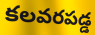
కలవరపడ్డ